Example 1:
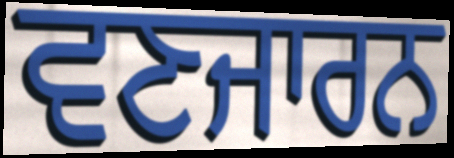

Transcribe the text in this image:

ਵਣਜਾਰਨ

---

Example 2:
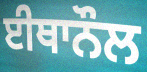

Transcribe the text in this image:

ਈਥਾਨੌਲ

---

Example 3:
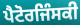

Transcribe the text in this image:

ਪੈਟੋਰਜਿੰਸਕੀ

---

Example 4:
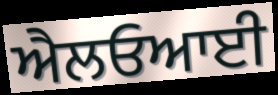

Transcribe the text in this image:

ਐਲਓਆਈ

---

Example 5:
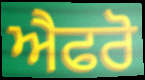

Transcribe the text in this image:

ਐਫਰੋ